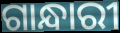
ଗାନ୍ଧାରୀ